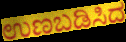
ಉಣಬಡಿಸಿದ